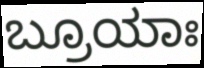
ಬ್ರೂಯಾಃ